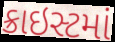
ક્રાઇસ્ટમાં